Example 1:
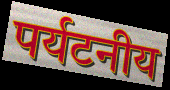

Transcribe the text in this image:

पर्यटनीय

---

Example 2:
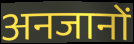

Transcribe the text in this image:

अनजानों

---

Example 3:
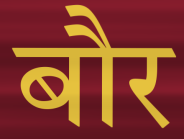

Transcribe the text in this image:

बौर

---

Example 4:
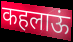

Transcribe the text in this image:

कहलाऊं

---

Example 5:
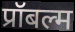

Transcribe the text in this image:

प्रॉबल्म